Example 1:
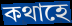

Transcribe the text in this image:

কথাহে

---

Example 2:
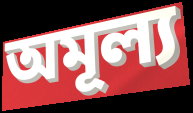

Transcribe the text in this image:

অমূল্য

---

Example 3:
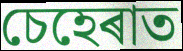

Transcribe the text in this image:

চেহেৰাত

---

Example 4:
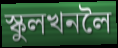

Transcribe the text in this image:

স্কুলখনলৈ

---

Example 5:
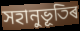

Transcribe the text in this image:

সহানুভূতিৰ